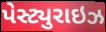
પેસ્ટ્યુરાઇઝ